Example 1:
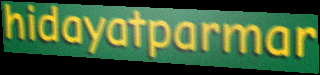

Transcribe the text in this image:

hidayatparmar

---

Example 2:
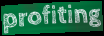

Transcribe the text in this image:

profiting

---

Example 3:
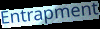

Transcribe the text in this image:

Entrapment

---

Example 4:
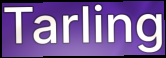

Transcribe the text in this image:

Tarling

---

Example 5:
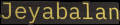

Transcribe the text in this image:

Jeyabalan